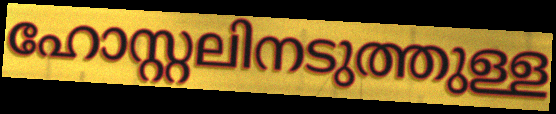
ഹോസ്റ്റലിനടുത്തുള്ള